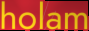
holam